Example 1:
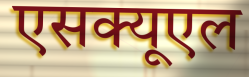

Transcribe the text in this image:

एसक्यूएल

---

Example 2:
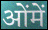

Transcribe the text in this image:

ओंमें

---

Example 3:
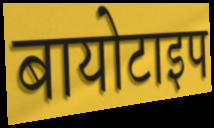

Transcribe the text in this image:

बायोटाइप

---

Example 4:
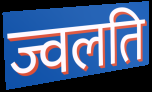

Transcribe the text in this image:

ज्वलति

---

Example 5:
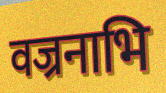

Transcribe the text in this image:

वज्रनाभि